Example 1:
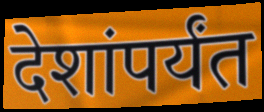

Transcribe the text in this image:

देशांपर्यंत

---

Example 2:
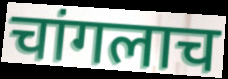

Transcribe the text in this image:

चांगलाच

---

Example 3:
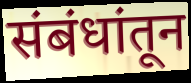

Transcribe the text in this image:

संबंधांतून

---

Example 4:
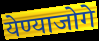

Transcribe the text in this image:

येण्याजोगे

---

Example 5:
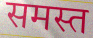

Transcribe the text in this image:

समस्त